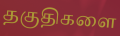
தகுதிகளை